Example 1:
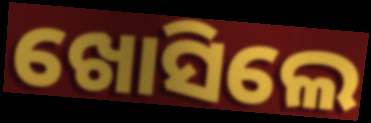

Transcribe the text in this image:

ଖୋସିଲେ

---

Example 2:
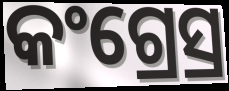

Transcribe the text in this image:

କଂଗ୍ରେସ୍ର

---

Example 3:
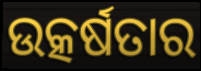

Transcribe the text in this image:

ଉତ୍କର୍ଷତାର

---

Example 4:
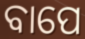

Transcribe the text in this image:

ବାପେ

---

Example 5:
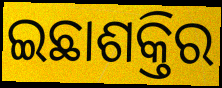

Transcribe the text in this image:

ଇଛାଶକ୍ତିର